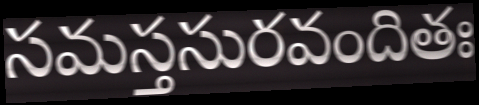
సమస్తసురవందితః